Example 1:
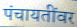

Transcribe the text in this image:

पंचायतींवर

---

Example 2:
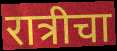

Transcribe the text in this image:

रात्रीचा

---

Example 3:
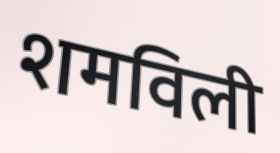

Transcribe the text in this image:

शमविली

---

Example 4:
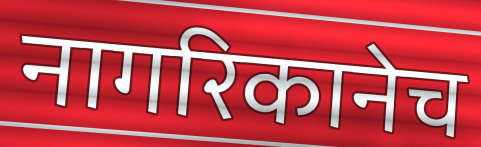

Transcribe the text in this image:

नागरिकानेच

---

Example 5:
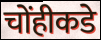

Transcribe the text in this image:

चोंहीकडे